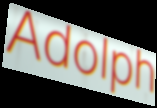
Adolph